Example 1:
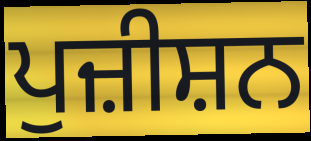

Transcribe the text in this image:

ਪੁਜ਼ੀਸ਼ਨ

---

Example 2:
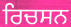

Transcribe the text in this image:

ਰਿਚਸਨ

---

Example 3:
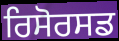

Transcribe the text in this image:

ਰਿਸੋਰਸਡ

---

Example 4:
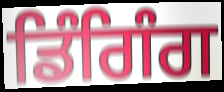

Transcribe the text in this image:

ਡਿੰਗਿੰਗ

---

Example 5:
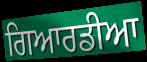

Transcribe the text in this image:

ਗਿਆਰਡੀਆ